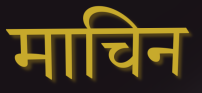
माचिन